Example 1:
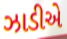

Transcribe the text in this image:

ઝાડીએ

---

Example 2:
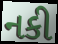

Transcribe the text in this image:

નકી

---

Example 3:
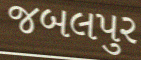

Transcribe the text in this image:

જબલપુર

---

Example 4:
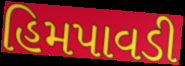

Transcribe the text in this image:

હિમપાવડી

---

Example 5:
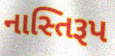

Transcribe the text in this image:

નાસ્તિરૂપ